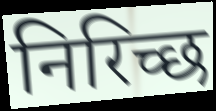
निरिच्छ